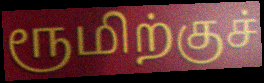
ரூமிற்குச்